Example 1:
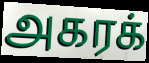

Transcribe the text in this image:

அகரக்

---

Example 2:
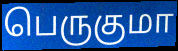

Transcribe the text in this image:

பெருகுமா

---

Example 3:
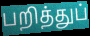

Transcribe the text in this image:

பறித்துப்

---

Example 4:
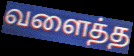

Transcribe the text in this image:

வளைத்த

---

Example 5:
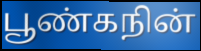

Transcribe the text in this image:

பூண்கநின்